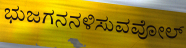
ಭುಜಗನನಳಿಸುವವೋಲ್